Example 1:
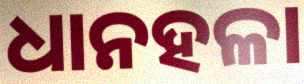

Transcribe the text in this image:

ଧାନହଳା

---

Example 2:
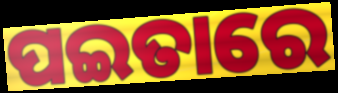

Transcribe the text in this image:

ପଇତାରେ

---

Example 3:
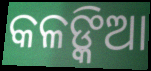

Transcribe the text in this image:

କଳଙ୍କିଆ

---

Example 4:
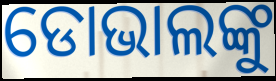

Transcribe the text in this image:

ଡୋଭାଲଙ୍କୁ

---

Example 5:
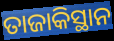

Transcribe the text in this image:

ତାଜାକିସ୍ଥାନ